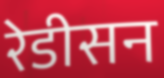
रेडीसन